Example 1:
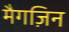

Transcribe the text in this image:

मैगज़िन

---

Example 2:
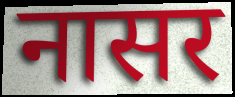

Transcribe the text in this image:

नासर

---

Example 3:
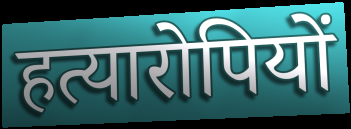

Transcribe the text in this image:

हत्यारोपियों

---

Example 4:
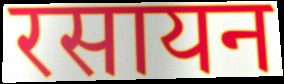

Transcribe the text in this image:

रसायन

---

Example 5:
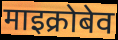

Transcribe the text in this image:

माइक्रोबेव